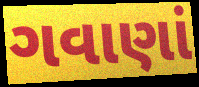
ગવાણાં